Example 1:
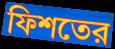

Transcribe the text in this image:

ফিশতের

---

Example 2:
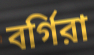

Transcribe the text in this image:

বর্গিরা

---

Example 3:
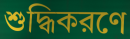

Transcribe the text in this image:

শুদ্ধিকরণে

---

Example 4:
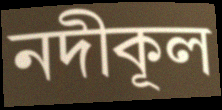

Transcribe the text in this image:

নদীকূল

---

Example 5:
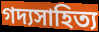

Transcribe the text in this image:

গদ্যসাহিত্য